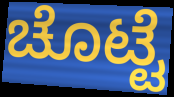
ಚೊಟ್ಟೆ